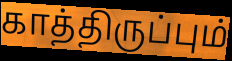
காத்திருப்பும்